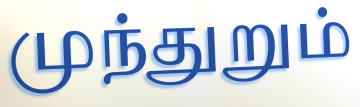
முந்துறும்